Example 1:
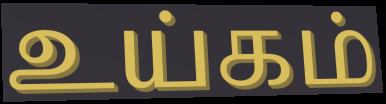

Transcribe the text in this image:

உய்கம்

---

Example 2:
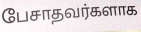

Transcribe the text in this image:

பேசாதவர்களாக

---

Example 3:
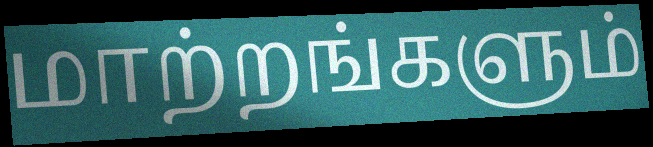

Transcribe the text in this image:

மாற்றங்களும்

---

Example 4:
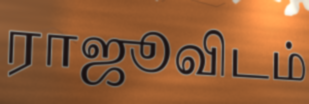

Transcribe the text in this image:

ராஜூவிடம்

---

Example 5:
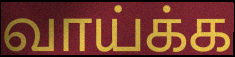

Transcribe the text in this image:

வாய்க்க